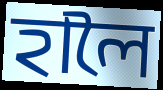
হালৈ